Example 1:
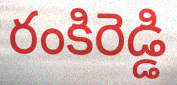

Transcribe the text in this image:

రంకిరెడ్డి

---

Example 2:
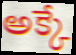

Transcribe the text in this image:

అక్కే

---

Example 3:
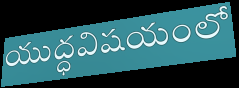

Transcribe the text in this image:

యుద్ధవిషయంలో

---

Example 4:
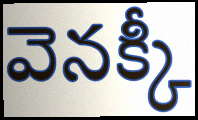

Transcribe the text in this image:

వెనక్కీ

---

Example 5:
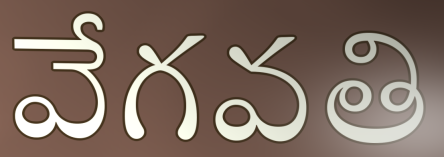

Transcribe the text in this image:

వేగవతి